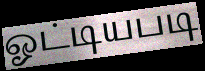
ஓட்டியபடி